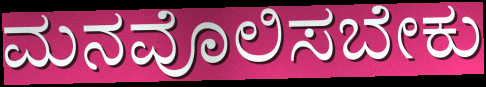
ಮನವೊಲಿಸಬೇಕು